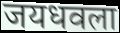
जयधवला